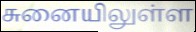
சுனையிலுள்ள